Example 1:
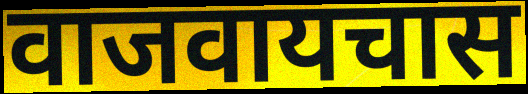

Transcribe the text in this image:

वाजवायचास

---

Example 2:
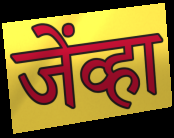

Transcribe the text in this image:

जेंव्हा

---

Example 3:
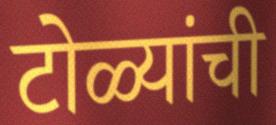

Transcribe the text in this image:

टोळ्यांची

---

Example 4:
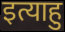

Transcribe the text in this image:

इत्याहु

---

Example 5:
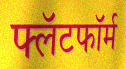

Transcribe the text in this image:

फ्लॅटफॉर्म